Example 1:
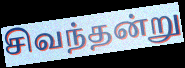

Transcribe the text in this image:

சிவந்தன்று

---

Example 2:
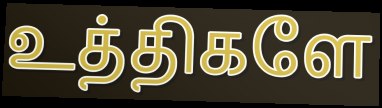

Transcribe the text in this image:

உத்திகளே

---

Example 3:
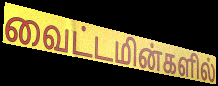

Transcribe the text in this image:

வைட்டமின்களில்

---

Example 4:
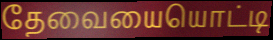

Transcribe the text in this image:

தேவையையொட்டி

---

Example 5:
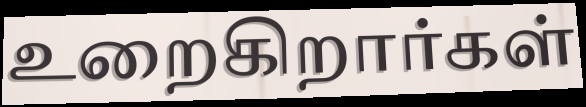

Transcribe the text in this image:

உறைகிறார்கள்